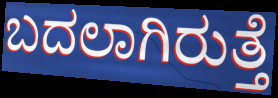
ಬದಲಾಗಿರುತ್ತೆ